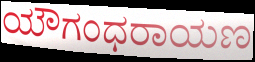
ಯೌಗಂಧರಾಯಣ